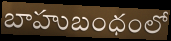
బాహుబంధంలో